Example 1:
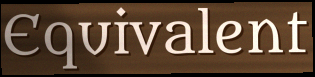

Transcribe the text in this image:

Equivalent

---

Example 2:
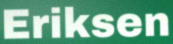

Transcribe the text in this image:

Eriksen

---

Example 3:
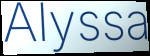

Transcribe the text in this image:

Alyssa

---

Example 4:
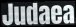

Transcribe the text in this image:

Judaea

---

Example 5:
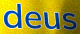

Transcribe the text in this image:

deus